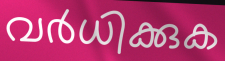
വർധിക്കുക